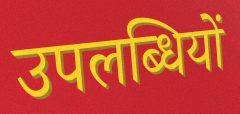
उपलब्धियों